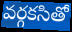
వర్గకసితో